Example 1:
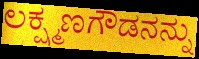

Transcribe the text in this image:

ಲಕ್ಷ್ಮಣಗೌಡನನ್ನು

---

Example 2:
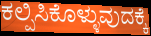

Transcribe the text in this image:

ಕಲ್ಪಿಸಿಕೊಳ್ಳುವುದಕ್ಕೆ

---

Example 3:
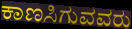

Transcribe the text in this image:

ಕಾಣಸಿಗುವವರು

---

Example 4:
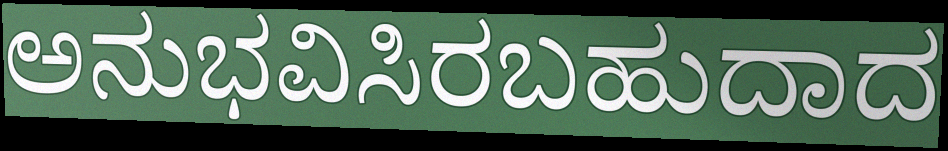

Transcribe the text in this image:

ಅನುಭವಿಸಿರಬಹುದಾದ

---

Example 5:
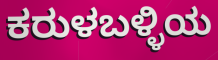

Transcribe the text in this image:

ಕರುಳಬಳ್ಳಿಯ